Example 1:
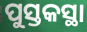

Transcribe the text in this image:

ପୁସ୍ତକସ୍ଥା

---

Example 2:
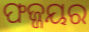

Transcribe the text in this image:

ଫଜ୍ଜୟର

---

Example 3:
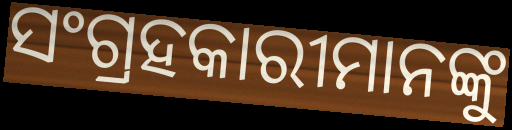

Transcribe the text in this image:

ସଂଗ୍ରହକାରୀମାନଙ୍କୁ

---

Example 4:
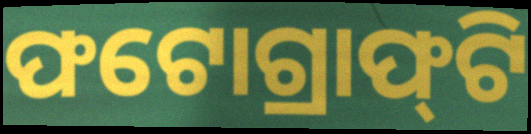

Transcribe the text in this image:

ଫଟୋଗ୍ରାଫ୍‌ଟି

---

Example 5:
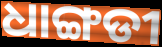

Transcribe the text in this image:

ଧାଙ୍ଗଡୀ